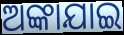
ଅଙ୍କାଯାଇ